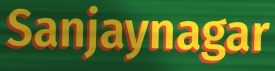
Sanjaynagar